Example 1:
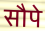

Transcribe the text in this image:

सौपे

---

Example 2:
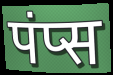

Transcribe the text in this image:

पंप्स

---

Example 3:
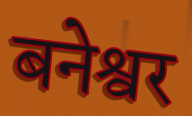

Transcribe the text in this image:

बनेश्वर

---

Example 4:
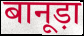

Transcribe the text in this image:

बानूड़ा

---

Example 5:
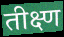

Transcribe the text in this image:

तीक्ष्ण